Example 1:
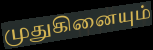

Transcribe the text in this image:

முதுகினையும்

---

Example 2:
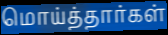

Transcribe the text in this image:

மொய்த்தார்கள்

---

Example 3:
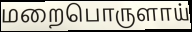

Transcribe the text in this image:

மறைபொருளாய்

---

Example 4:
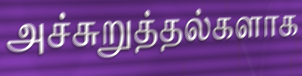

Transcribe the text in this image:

அச்சுறுத்தல்களாக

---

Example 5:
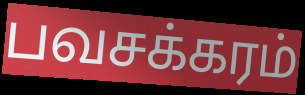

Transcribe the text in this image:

பவசக்கரம்